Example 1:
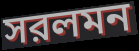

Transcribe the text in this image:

সরলমন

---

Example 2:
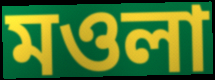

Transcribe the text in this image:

মওলা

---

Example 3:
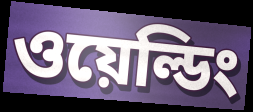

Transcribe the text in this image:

ওয়েল্ডিং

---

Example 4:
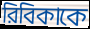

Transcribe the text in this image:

রিবিকাকে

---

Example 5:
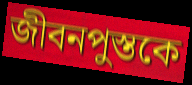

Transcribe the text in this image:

জীবনপুস্তকে